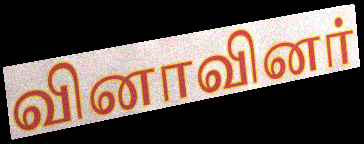
வினாவினர்